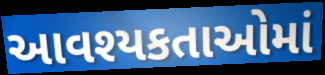
આવશ્યકતાઓમાં